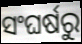
ସଂଘର୍ଷରୁ